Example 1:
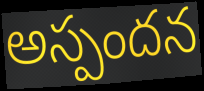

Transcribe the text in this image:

అస్పందన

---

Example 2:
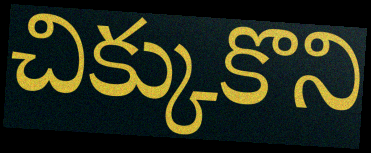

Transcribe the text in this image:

చిక్కుకొని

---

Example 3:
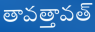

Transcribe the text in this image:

తావత్తావత్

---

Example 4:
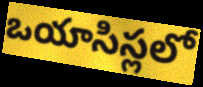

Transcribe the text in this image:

ఒయాసిస్లలో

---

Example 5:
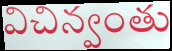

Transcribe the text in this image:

విచిన్వంతు